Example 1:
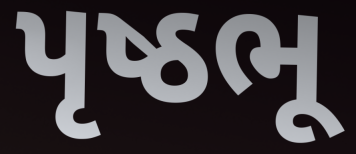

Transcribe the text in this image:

પૃષ્ઠભૂ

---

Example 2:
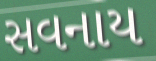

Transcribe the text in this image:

સવનાય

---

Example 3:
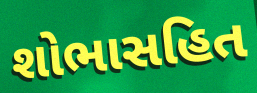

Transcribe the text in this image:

શોભાસહિત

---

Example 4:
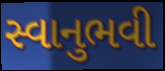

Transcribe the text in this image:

સ્વાનુભવી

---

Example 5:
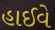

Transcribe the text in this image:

હાઈવે